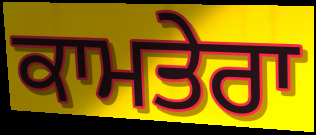
ਕਾਮਤੇਰਾ